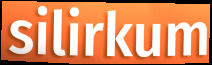
silirkum